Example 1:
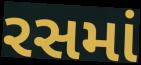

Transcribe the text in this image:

રસમાં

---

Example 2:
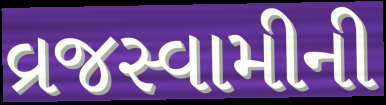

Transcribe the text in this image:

વ્રજસ્વામીની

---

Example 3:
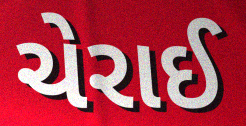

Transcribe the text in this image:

ચેરાઈ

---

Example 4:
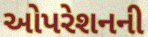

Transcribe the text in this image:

ઓપરેશનની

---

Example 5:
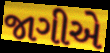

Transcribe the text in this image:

જાગીએ